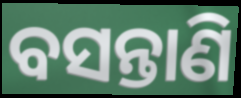
ବସନ୍ତାଣି